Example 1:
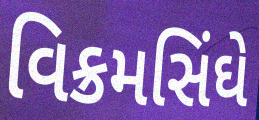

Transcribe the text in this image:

વિક્રમસિંઘે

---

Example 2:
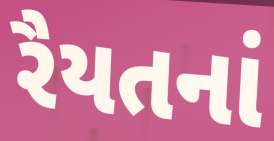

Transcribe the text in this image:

રૈયતનાં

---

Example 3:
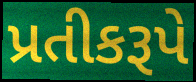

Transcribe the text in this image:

પ્રતીકરૂપે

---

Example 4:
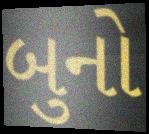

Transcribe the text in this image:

બુનો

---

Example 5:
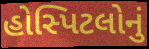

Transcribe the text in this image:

હોસ્પિટલોનું